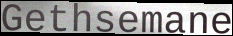
Gethsemane